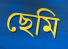
ছেমি